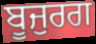
ਬੂਜੁਰਗ